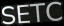
SETC